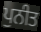
ਪੁਨੀਤ